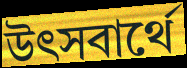
উৎসবার্থে